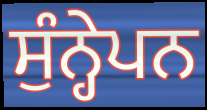
ਸੁੰਨ੍ਹੇਪਨ